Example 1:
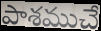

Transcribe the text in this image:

పాశముచే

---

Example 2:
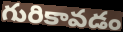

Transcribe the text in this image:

గురికావడం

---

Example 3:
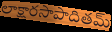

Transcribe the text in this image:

లాక్షారసాపాదితమ్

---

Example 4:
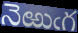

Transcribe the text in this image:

నెఱుఁగ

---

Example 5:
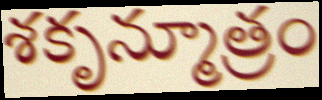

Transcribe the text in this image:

శకృన్మూత్రం